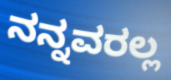
ನನ್ನವರಲ್ಲ